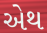
એથ